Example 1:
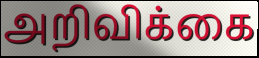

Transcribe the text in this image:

அறிவிக்கை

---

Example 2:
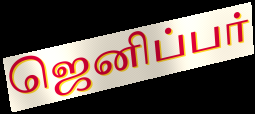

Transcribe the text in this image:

ஜெனிப்பர்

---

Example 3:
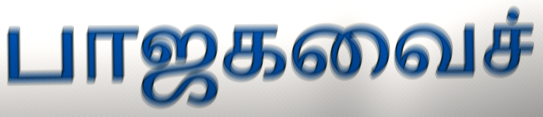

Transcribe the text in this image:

பாஜகவைச்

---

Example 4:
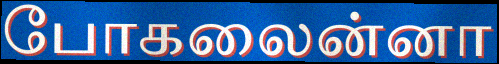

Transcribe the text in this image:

போகலைன்னா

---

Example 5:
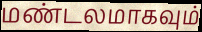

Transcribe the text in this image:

மண்டலமாகவும்